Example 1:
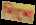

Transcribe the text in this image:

শিশে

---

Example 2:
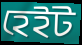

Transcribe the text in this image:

হেইট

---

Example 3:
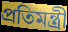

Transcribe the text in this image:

প্রতিমন্ত্রী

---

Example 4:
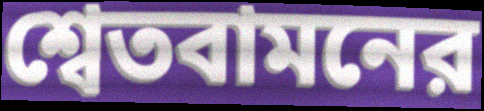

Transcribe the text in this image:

শ্বেতবামনের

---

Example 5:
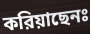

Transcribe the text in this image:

করিয়াছেনঃ